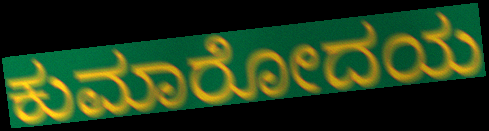
ಕುಮಾರೋದಯ